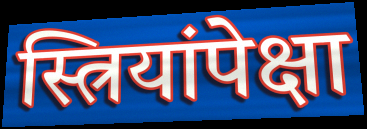
स्त्रियांपेक्षा